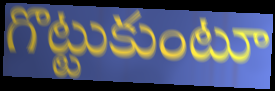
గొట్టుకుంటూ